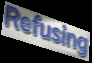
Refusing